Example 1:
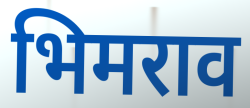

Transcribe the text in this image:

भिमराव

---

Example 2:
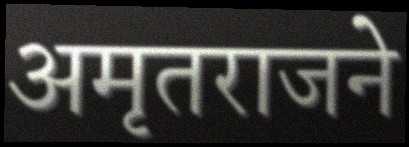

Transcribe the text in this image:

अमृतराजने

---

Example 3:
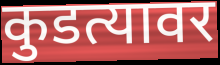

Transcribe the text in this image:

कुडत्यावर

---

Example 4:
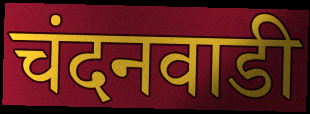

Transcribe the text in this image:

चंदनवाडी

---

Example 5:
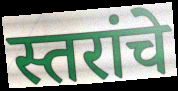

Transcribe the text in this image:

स्तरांचे